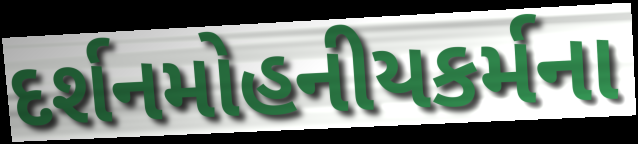
દર્શનમોહનીયકર્મના